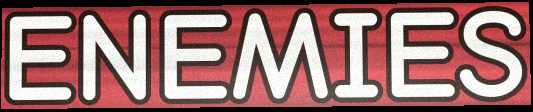
ENEMIES